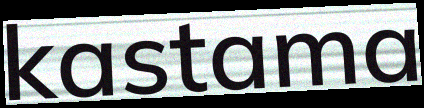
kastama